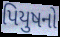
પિયુષનો